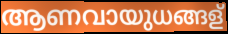
ആണവായുധങ്ങള്